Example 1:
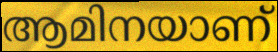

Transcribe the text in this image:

ആമിനയാണ്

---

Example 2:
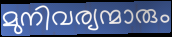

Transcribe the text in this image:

മുനിവര്യന്മാരും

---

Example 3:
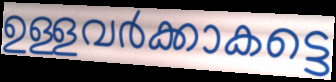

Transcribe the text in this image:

ഉള്ളവർക്കാകട്ടെ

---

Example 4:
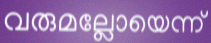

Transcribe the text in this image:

വരുമല്ലോയെന്ന്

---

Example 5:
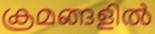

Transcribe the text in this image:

ക്രമങ്ങളിൽ